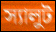
স্যালুট